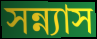
সন্ন্যাস